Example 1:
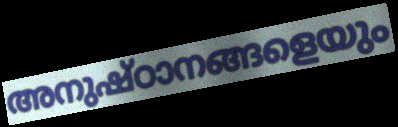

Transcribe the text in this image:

അനുഷ്ഠാനങ്ങളെയും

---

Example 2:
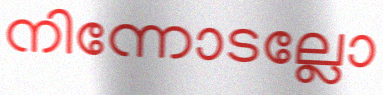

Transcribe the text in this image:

നിന്നോടല്ലോ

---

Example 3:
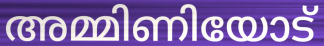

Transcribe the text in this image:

അമ്മിണിയോട്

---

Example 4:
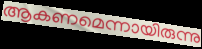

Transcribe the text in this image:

ആകണമെന്നായിരുന്നു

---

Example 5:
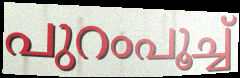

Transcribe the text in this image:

പുറംപൂച്ച്